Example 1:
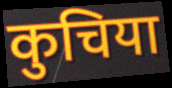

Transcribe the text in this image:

कुचिया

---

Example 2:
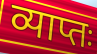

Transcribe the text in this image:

व्याप्तः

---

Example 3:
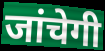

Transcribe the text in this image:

जांचेगी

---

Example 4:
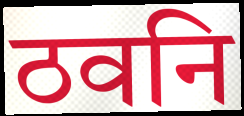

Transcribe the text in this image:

ठवनि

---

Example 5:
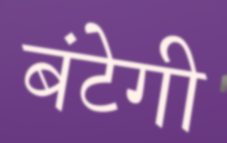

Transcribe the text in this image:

बंटेगी